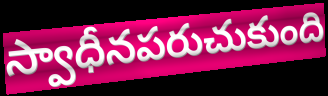
స్వాధీనపరుచుకుంది